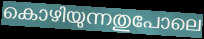
കൊഴിയുന്നതുപോലെ